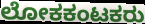
ಲೋಕಕಂಟಕರು